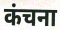
कंचना